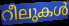
റീലുകൾ